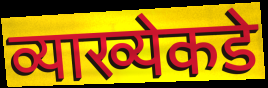
व्याख्येकडे